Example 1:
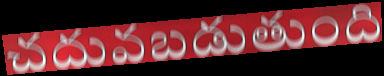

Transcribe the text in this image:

చదువబడుతుంది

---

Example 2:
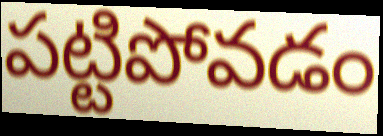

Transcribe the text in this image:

పట్టిపోవడం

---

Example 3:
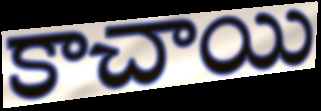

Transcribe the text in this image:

కాచాయి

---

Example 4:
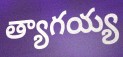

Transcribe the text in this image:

త్యాగయ్య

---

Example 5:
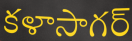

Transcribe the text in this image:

కళాసాగర్